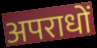
अपराधों